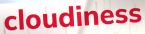
cloudiness